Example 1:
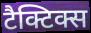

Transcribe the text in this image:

टैक्टिक्स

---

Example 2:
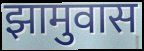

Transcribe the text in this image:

झामुवास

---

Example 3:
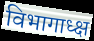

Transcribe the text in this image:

विभागाध्क्ष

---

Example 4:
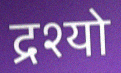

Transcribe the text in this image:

द्रश्यो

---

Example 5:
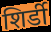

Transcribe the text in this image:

शिर्डी